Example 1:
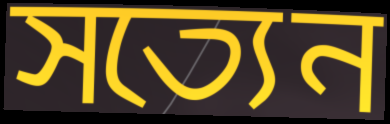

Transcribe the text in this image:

সত্যেন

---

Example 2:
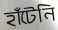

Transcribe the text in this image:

হাঁটেনি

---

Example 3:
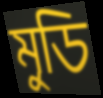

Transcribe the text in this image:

মুডি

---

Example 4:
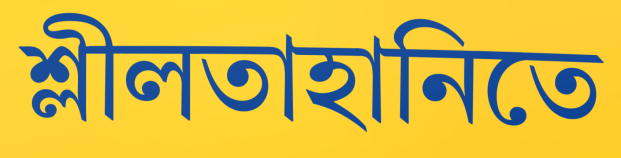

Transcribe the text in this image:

শ্লীলতাহানিতে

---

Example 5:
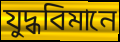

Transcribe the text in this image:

যুদ্ধবিমানে